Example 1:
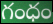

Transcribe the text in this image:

గంధం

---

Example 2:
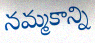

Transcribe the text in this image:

నమ్మకాన్ని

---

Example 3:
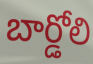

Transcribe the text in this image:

బార్డోలి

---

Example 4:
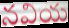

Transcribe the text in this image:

నవియ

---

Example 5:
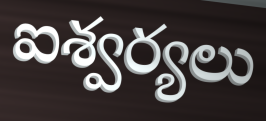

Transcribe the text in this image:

ఐశ్వర్యలు